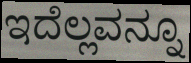
ಇದೆಲ್ಲವನ್ನೂ